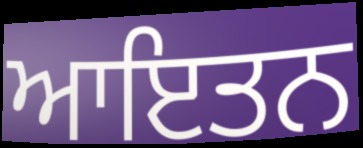
ਆਇਤਨ